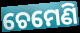
ଚେମେଣି